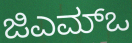
ಜಿಎಮ್ಒ